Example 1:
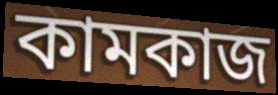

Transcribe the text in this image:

কামকাজ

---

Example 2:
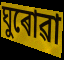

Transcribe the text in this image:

ঘুৰোৱা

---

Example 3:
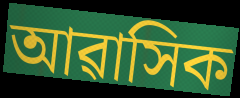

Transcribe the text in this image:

আৱাসিক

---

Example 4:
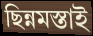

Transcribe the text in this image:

ছিন্নমস্তাই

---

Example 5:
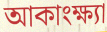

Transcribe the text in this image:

আকাংক্ষ্যা